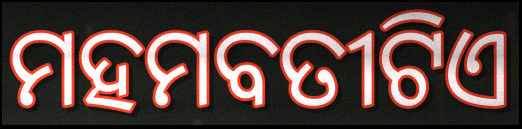
ମହମବତୀଟିଏ